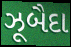
ઝૂબૈદા